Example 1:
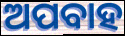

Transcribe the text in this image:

ଅପବାହ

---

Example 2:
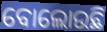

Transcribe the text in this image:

ବୋଲୋଉଛି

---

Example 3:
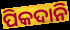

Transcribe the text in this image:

ପିକଦାନି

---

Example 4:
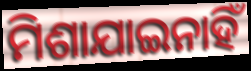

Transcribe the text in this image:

ମିଶାଯାଇନାହିଁ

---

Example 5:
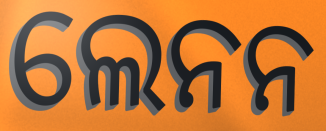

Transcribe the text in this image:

ଲେନନ